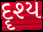
દૄશ્ય